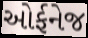
ઓર્ફનેજ